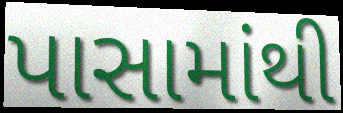
પાસામાંથી